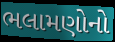
ભલામણોનો